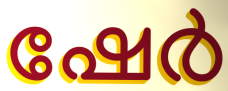
ഷേർ